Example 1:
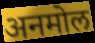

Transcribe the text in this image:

अनमोल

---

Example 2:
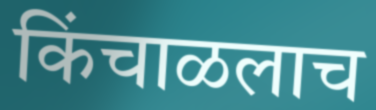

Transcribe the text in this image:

किंचाळलाच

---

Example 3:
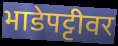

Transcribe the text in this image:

भाडेपट्टीवर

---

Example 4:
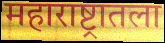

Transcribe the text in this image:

महाराष्ट्रातला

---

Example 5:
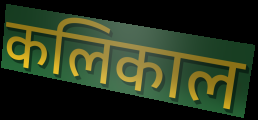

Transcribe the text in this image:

कलिकाल